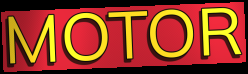
MOTOR